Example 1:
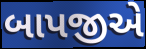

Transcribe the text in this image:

બાપજીએ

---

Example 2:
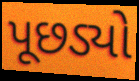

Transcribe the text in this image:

પૂછડ્યો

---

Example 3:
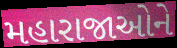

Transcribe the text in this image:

મહારાજાઓને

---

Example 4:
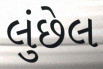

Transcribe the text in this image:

લુંછેલ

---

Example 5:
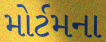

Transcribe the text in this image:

મોર્ટમના